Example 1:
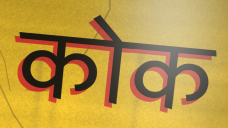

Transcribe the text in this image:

कोक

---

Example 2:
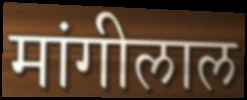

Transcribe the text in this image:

मांगीलाल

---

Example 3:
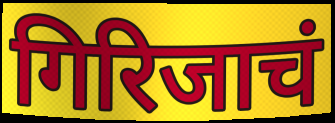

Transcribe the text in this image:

गिरिजाचं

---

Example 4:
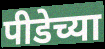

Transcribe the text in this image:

पीडेच्या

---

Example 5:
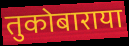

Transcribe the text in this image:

तुकोबाराया